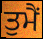
ਤੁਮੈਂ